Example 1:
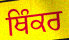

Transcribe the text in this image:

ਥਿੰਕਰ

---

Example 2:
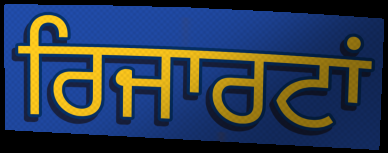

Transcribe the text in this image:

ਰਿਜਾਰਟਾਂ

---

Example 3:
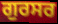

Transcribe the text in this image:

ਗੁਰਸਰ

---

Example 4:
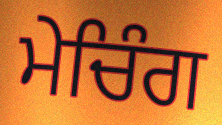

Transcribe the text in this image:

ਮੇਚਿੰਗ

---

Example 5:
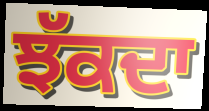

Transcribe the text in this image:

ਝੱਕਦਾ